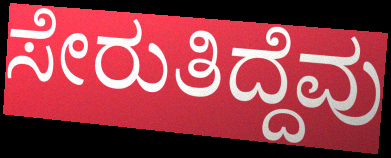
ಸೇರುತಿದ್ದೆವು